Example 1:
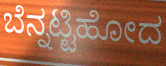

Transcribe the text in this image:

ಬೆನ್ನಟ್ಟಿಹೋದ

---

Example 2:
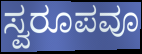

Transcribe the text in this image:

ಸ್ವರೂಪವೂ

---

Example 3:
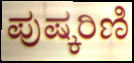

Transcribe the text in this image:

ಪುಷ್ಕರಿಣಿ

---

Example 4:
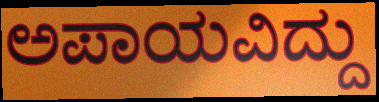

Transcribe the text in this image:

ಅಪಾಯವಿದ್ದು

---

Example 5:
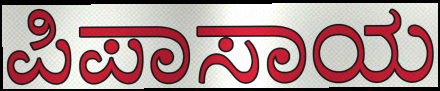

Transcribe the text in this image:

ಪಿಪಾಸಾಯ